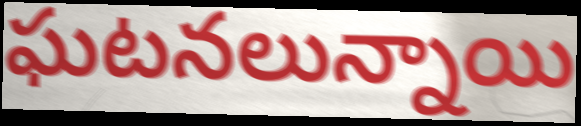
ఘటనలున్నాయి